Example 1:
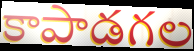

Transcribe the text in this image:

కాపాడగల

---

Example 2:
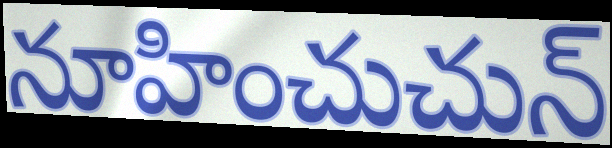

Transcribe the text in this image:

నూహించుచున్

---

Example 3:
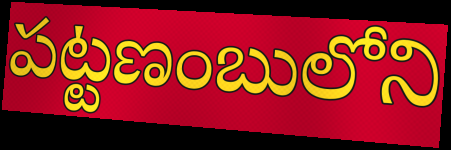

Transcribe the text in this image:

పట్టణంబులోని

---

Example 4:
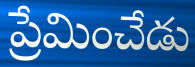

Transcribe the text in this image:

ప్రేమించేడు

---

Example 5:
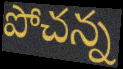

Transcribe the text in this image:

పోచన్న